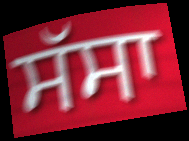
ਸੱਸਾ